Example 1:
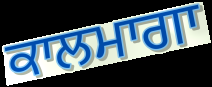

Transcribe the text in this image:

ਕਾਲਮਾਗਾ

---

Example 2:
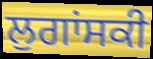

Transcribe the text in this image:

ਲੁਗਾਂਸਕੀ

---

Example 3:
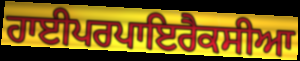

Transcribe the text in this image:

ਹਾਈਪਰਪਾਇਰੈਕਸੀਆ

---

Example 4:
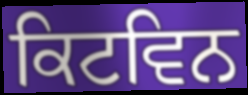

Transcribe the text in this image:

ਕਿਟਵਿਨ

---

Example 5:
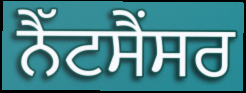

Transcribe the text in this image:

ਨੈੱਟਸੈਂਸਰ